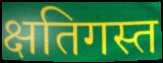
क्षतिगस्त